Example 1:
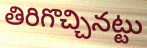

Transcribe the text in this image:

తిరిగొచ్చినట్టు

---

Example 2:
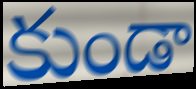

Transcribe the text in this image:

కుండా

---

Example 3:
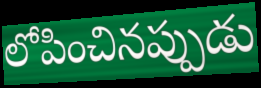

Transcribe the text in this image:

లోపించినప్పుడు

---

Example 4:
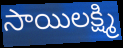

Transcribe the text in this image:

సాయిలక్ష్మి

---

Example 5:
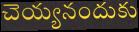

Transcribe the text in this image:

చెయ్యనందుకు